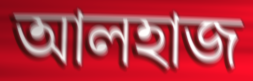
আলহাজ